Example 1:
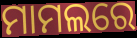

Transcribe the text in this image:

ମାମଲରେ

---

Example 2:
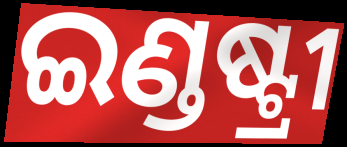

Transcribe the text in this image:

ଇଣ୍ଡଷ୍ଟ୍ରୀ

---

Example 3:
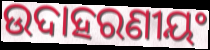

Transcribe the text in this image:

ଉଦାହରଣୀୟଂ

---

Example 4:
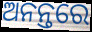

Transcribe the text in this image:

ଅନନ୍ତରେ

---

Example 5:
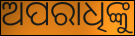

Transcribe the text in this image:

ଅପରାଧିଙ୍କୁ